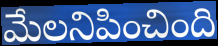
మేలనిపించింది